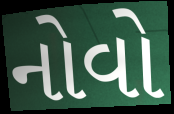
નોવો